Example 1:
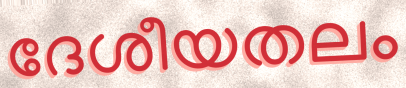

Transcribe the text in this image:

ദേശീയതലം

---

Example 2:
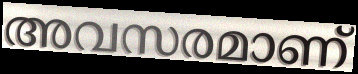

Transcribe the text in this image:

അവസരമാണ്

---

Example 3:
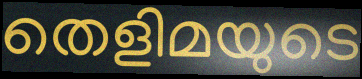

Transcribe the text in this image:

തെളിമയുടെ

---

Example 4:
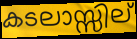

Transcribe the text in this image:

കടലാസ്സില്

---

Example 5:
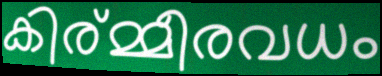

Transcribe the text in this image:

കിര്മ്മീരവധം